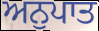
ਅਨੁਪਾਤ